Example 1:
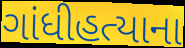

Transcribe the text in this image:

ગાંધીહત્યાના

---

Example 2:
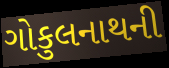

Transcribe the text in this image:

ગોકુલનાથની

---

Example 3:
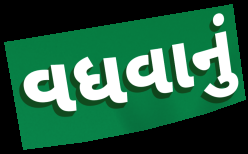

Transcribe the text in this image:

વધવાનું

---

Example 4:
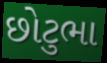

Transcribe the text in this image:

છોટુભા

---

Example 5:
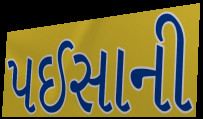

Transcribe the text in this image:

પઈસાની